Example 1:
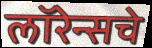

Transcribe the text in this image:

लॉरेन्सचे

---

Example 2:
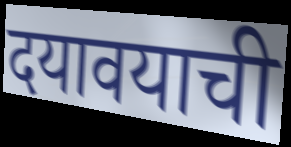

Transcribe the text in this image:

दयावयाची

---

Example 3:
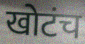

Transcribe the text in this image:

खोटंच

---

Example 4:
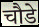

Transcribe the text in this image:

चौडे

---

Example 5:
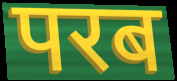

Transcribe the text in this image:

परब